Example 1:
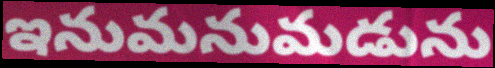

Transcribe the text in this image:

ఇనుమనుమడును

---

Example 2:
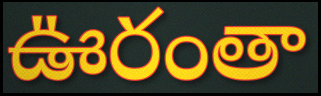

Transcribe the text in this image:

ఊరంతా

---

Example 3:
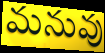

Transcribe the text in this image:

మనువు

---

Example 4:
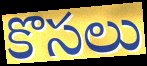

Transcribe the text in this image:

కొసలు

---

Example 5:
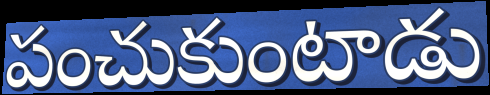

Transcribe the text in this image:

పంచుకుంటాడు